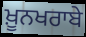
ਖ਼ੂਨਖਰਾਬੇ